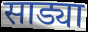
साड्या